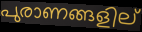
പുരാണങ്ങളില്